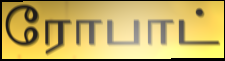
ரோபாட்